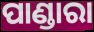
ପାଣ୍ଡାରା